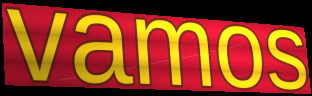
vamos